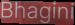
Bhagini